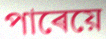
পাৰেয়ে